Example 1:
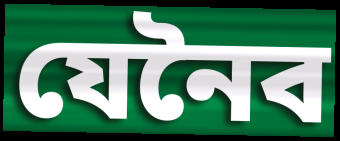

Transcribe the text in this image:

যেনৈব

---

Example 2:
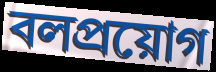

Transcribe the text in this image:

বলপ্রয়োগ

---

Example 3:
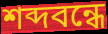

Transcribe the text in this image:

শব্দবন্ধে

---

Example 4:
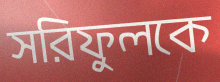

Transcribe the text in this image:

সরিফুলকে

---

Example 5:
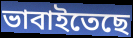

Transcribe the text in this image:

ভাবাইতেছে